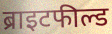
ब्राइटफील्ड